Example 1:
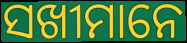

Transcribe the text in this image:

ସଖୀମାନେ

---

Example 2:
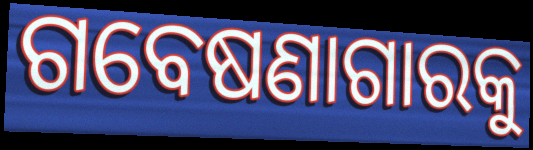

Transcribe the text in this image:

ଗବେଷଣାଗାରକୁ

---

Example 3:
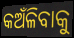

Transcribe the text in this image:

କଅଁଳିବାକୁ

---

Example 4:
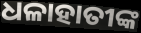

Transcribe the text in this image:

ଧଳାହାତୀଙ୍କ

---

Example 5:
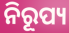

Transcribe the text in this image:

ନିରୂପ୍ୟ